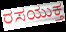
ರಸಯುಕ್ತ